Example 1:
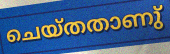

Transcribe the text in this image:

ചെയ്തതാണു്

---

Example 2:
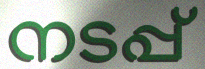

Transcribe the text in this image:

നടപ്പ്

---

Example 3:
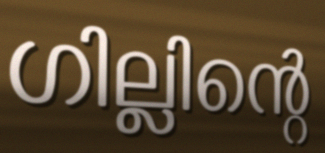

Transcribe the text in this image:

ഗില്ലിന്റെ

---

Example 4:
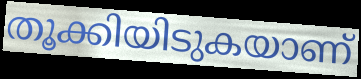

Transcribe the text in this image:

തൂക്കിയിടുകയാണ്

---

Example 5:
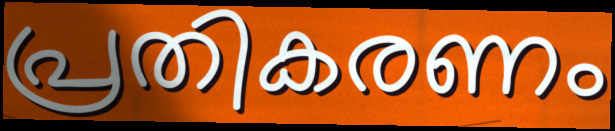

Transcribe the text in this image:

പ്രതികരണം